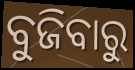
ବୁଜିବାରୁ